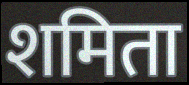
शमिता